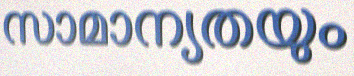
സാമാന്യതയും